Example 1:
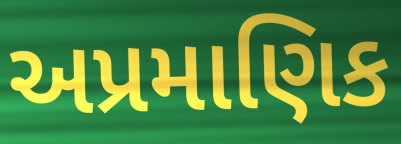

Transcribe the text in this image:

અપ્રમાણિક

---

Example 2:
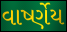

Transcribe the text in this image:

વાર્ષ્ણેય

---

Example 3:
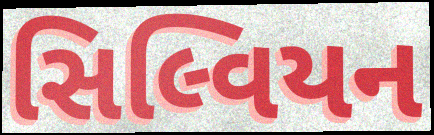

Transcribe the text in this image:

સિલ્વિયન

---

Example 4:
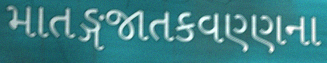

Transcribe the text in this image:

માતઙ્ગજાતકવણ્ણના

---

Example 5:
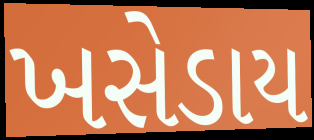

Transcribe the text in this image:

ખસેડાય